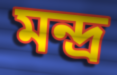
মন্দ্র